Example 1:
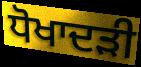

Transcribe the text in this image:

ਧੋਖਾਦੜੀ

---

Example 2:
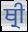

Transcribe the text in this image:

ਥ੍ਰੀ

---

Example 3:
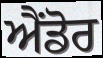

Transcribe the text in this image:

ਐਂਡੋਰ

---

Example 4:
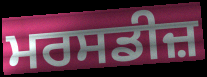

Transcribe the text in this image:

ਮਰਸਡੀਜ਼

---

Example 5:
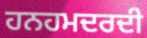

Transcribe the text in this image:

ਹਨਹਮਦਰਦੀ